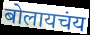
बोलायचंय